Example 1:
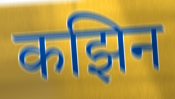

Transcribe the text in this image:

कझिन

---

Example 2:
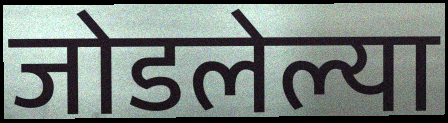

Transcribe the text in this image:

जोडलेल्या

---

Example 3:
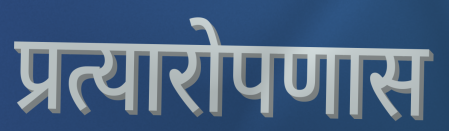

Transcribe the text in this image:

प्रत्यारोपणास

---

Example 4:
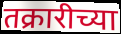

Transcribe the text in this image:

तक्रारीच्या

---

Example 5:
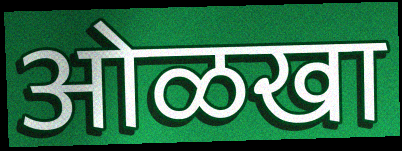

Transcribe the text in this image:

ओळखा